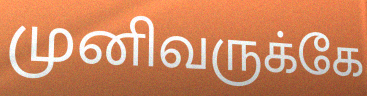
முனிவருக்கே